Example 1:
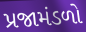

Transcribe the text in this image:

પ્રજામંડળો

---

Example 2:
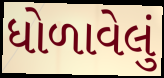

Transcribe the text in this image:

ધોળાવેલું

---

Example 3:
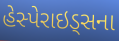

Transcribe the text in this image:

હેસ્પેરાઇડ્સના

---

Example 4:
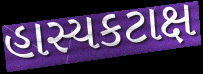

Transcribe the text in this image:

હાસ્યકટાક્ષ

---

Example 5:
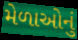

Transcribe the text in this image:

મેળાઓનું